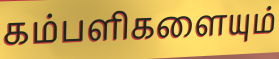
கம்பளிகளையும்